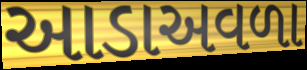
આડાઅવળા